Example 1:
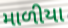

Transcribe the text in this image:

માળીયા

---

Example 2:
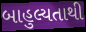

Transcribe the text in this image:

બાહુલ્યતાથી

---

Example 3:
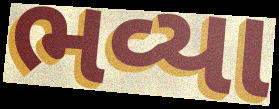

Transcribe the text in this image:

ભવ્યા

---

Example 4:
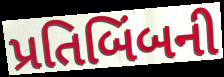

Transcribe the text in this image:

પ્રતિબિંબની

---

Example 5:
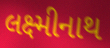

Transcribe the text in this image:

લક્ષ્મીનાથ